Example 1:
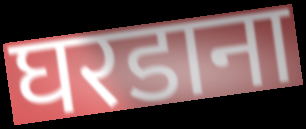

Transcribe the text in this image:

घरडाना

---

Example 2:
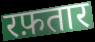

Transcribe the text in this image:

रफ़तार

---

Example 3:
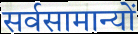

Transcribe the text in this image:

सर्वसामान्यों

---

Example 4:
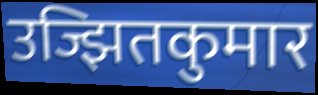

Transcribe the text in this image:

उज्झितकुमार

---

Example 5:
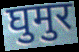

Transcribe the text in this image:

घुमुर